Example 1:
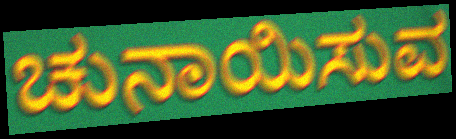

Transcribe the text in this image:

ಚುನಾಯಿಸುವ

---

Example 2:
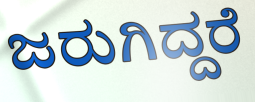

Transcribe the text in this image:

ಜರುಗಿದ್ದರೆ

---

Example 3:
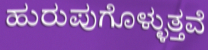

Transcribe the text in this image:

ಹುರುಪುಗೊಳ್ಳುತ್ತವೆ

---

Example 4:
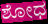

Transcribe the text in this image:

ಶೋಧ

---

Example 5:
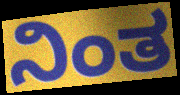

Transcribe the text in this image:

ನಿಂತ